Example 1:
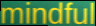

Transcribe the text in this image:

mindful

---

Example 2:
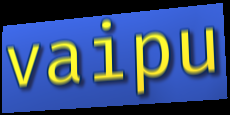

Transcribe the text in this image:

vaipu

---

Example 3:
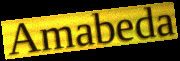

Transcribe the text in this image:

Amabeda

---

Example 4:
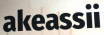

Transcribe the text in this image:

akeassii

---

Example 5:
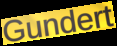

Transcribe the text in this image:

Gundert